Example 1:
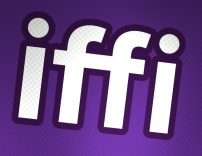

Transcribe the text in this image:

iffi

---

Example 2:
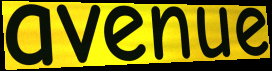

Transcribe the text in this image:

avenue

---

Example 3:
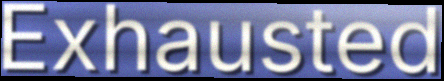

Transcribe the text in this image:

Exhausted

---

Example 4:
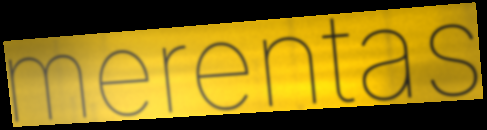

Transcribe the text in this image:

merentas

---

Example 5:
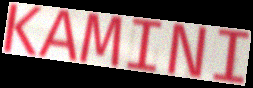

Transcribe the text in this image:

KAMINI